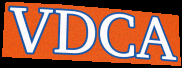
VDCA